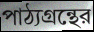
পাঠ্যগ্রন্থের